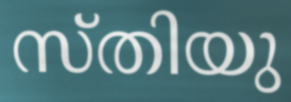
സ്തിയു